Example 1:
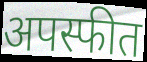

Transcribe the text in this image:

अपस्फीत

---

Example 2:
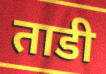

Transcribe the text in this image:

ताडी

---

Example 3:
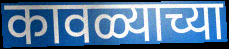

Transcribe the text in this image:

कावळ्याच्या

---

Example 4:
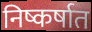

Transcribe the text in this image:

निष्कर्षात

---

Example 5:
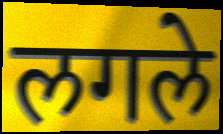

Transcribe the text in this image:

लगले